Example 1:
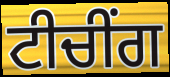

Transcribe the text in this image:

ਟੀਚੀਂਗ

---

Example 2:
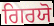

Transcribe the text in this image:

ਗਿਰਯੋ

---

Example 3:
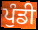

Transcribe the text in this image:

ਪੁੰਡੀ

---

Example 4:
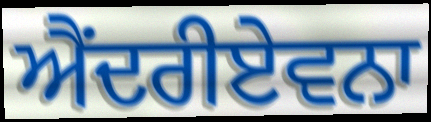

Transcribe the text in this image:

ਐਂਦਰੀਏਵਨਾ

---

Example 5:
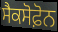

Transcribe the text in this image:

ਸੈਕਸੋਫ਼ੋਨ